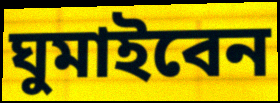
ঘুমাইবেন